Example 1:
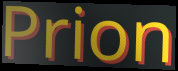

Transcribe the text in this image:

Prion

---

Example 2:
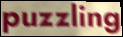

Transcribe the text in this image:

puzzling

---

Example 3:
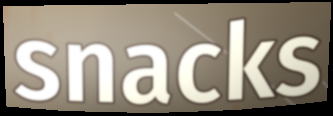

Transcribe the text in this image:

snacks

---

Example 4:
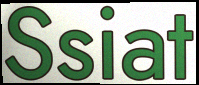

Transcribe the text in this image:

Ssiat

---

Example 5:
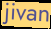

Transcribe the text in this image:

jivan